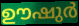
ഊഷുർ